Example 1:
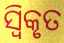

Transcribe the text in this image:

ସ୍ଵିକୃତ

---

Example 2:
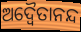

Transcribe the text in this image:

ଅଦ୍ଵୈତାନନ୍ଦ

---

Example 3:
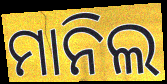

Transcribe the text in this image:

ମାନିଲ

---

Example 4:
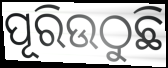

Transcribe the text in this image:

ପୂରିଉଠୁଛି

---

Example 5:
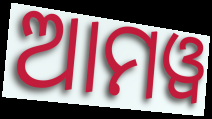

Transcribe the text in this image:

ଆମୱ